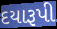
દયારૂપી